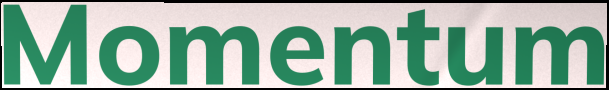
Momentum